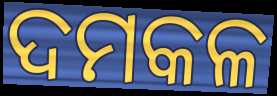
ଦମକଳ